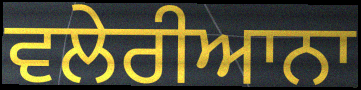
ਵਲੇਰੀਆਨਾ